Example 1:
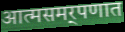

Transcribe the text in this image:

आत्मसमर्पणात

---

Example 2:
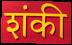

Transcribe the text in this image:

शंकी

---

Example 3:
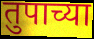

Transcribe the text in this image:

तुपाच्या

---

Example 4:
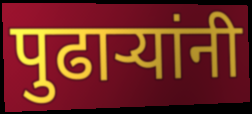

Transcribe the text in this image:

पुढाऱ्यांनी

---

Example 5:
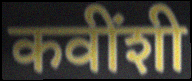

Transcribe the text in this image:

कवींशी